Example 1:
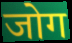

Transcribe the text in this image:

जोग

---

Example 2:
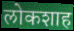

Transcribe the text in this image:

लोकशाह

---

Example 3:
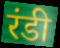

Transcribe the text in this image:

रंडी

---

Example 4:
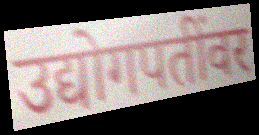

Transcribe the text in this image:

उद्योगपतींवर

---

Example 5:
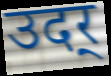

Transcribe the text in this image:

उदर्